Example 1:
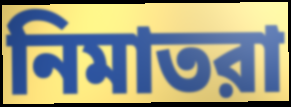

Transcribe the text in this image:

নিমাতরা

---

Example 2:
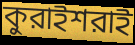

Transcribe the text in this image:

কুরাইশরাই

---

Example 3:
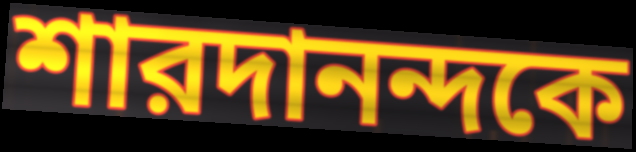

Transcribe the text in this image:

শারদানন্দকে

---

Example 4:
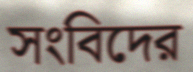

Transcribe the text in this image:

সংবিদের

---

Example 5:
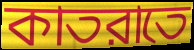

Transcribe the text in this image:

কাতরাতে